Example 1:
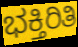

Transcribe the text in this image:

ಭಕ್ತಿರಿತಿ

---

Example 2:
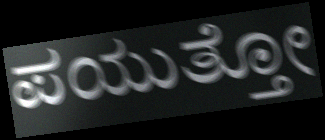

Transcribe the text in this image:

ಪಯುತ್ತೋ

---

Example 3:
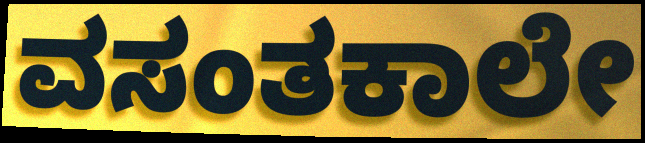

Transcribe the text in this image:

ವಸಂತಕಾಲೇ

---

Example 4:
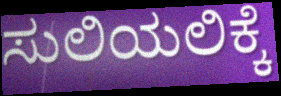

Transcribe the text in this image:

ಸುಲಿಯಲಿಕ್ಕೆ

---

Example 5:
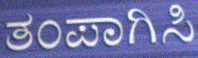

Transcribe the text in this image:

ತಂಪಾಗಿಸಿ